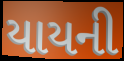
યાયની